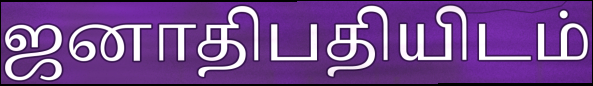
ஜனாதிபதியிடம்